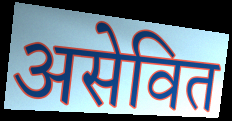
असेवित